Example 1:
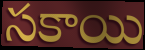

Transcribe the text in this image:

సకాయి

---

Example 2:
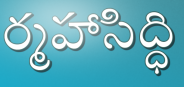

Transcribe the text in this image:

ర్మహాసిద్ధి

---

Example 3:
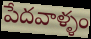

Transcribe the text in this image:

పేదవాళ్ళం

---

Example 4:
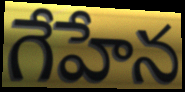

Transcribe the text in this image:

గేహేన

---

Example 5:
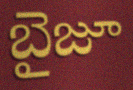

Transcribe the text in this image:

బైజూ